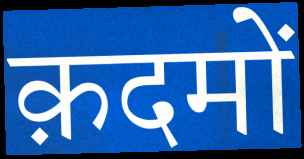
क़दमों